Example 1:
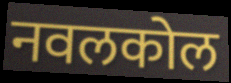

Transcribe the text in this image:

नवलकोल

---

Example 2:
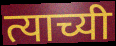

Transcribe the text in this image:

त्याच्यी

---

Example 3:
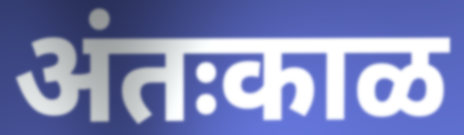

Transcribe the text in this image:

अंतःकाळ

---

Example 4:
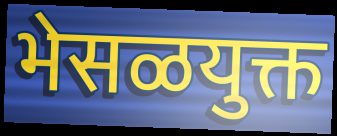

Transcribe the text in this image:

भेसळयुक्त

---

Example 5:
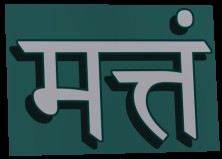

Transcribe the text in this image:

मत्तं